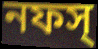
নফস্